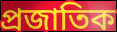
প্ৰজাতিক